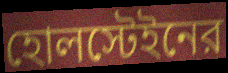
হোলস্টেইনের